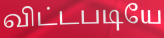
விட்டபடியே